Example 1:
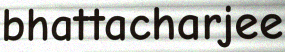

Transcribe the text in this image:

bhattacharjee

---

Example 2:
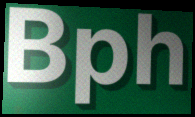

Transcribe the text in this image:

Bph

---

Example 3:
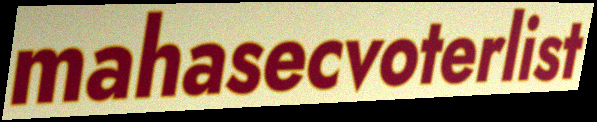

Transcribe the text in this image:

mahasecvoterlist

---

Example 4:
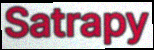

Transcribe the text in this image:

Satrapy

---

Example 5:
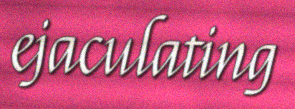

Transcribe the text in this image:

ejaculating